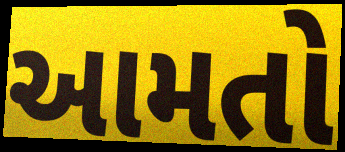
આમતો